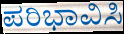
ಪರಿಭಾವಿಸಿ